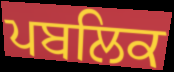
ਪਬਲਿਕ